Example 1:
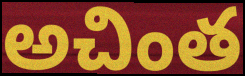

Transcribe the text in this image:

అచింత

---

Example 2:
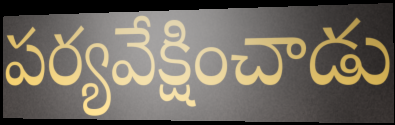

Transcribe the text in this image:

పర్యవేక్షించాడు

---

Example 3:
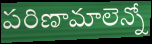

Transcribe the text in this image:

పరిణామాలెన్నో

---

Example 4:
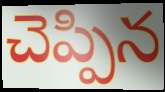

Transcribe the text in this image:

చెప్పిన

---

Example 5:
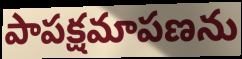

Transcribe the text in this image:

పాపక్షమాపణను